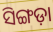
ସିଙ୍ଗଡ଼ା